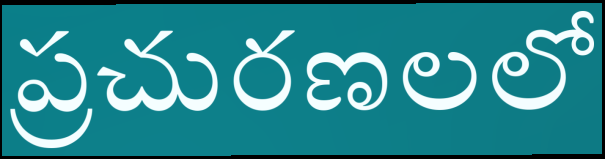
ప్రచురణలలో